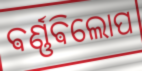
ଵର୍ଣ୍ଣଵିଲୋପ